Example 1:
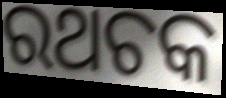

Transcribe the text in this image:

ରଥଚକ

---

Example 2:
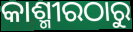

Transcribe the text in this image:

କାଶ୍ମୀରଠାରୁ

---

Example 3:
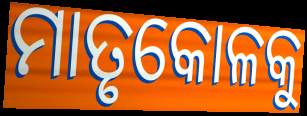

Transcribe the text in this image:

ମାତୃକୋଳକୁ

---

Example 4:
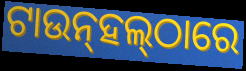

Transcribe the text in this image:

ଟାଉନ୍‌ହଲ୍‌ଠାରେ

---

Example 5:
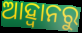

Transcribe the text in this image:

ଆହ୍ବାନରୁ